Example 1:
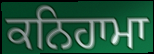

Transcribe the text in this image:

ਕਨਿਹਾਮਾ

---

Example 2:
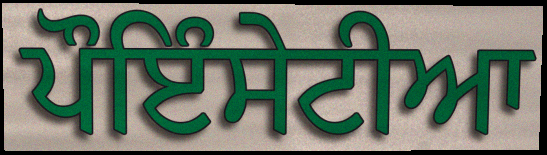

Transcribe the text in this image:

ਪੌਇੰਸੇਟੀਆ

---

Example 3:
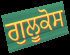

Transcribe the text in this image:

ਗੁਲੂਕੋਸ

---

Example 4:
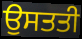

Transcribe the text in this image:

ਉਸਤਤੀ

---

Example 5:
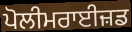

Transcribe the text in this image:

ਪੋਲੀਮਰਾਈਜ਼ਡ